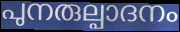
പുനരുല്പാദനം